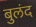
बुलंद